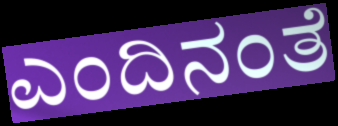
ಎಂದಿನಂತೆ